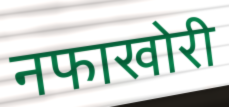
नफाखोरी